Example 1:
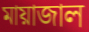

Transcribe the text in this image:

মায়াজাল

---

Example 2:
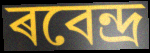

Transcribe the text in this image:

ৰবেন্দ্ৰ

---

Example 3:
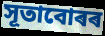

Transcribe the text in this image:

সূতাবোৰৰ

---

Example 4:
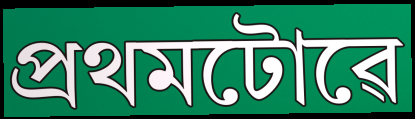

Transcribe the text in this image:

প্ৰথমটোৱে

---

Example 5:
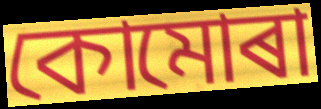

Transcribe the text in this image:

কোমোৰা